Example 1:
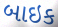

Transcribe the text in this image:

બાઇક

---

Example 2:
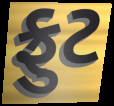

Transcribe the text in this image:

ફ્રુટ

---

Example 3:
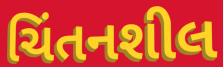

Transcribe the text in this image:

ચિંતનશીલ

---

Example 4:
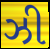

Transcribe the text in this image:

ઝી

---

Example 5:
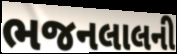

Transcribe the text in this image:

ભજનલાલની